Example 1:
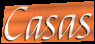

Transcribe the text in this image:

Casas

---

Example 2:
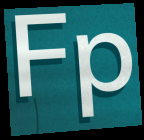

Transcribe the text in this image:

Fp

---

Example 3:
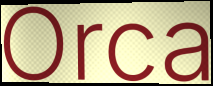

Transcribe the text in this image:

Orca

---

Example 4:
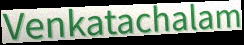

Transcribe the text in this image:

Venkatachalam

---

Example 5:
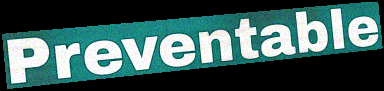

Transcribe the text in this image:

Preventable